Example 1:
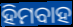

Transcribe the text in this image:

ହିମବାହ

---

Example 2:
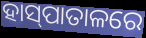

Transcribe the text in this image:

ହାସ୍‌ପାତାଳରେ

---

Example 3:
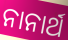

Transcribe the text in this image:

ନାନାର୍ଥ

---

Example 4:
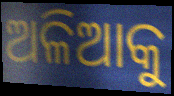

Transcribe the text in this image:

ଅଳିଆକୁ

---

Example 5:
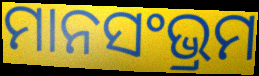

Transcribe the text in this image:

ମାନସଂଭ୍ରମ